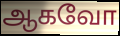
ஆகவோ